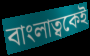
বাংলাত্বকেই